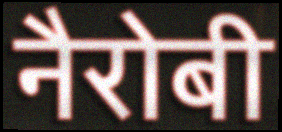
नैरोबी